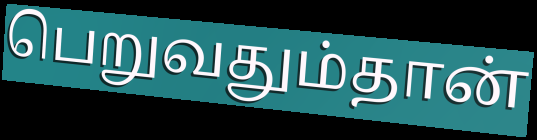
பெறுவதும்தான்